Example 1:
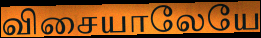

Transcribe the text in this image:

விசையாலேயே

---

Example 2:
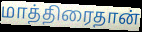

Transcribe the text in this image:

மாத்திரைதான்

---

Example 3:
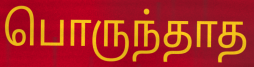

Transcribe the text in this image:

பொருந்தாத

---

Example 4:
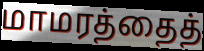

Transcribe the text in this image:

மாமரத்தைத்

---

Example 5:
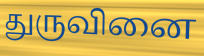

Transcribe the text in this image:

துருவினை